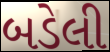
બડેલી